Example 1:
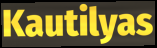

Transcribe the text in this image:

Kautilyas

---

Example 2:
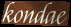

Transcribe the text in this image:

kondae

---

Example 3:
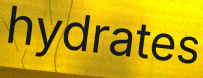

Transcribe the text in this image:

hydrates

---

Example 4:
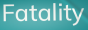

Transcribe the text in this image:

Fatality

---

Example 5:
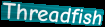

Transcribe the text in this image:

Threadfish